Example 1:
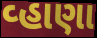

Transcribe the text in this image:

વ્હાણા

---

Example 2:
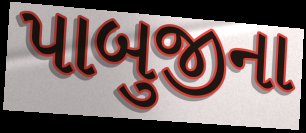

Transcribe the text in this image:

પાબુજીના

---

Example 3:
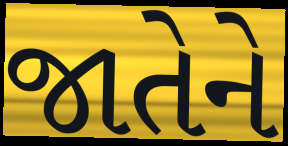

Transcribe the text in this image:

જાતેને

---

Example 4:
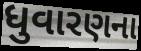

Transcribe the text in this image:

ધુવારણના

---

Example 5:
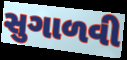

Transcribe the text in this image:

સુગાળવી